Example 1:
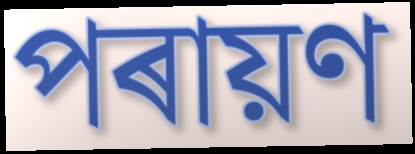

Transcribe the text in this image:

পৰায়ণ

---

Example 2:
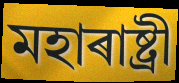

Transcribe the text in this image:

মহাৰাষ্ট্ৰী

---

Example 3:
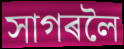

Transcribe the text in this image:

সাগৰলৈ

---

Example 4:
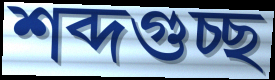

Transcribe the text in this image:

শব্দগুচ্ছ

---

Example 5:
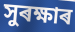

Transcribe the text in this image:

সুৰক্ষাৰ